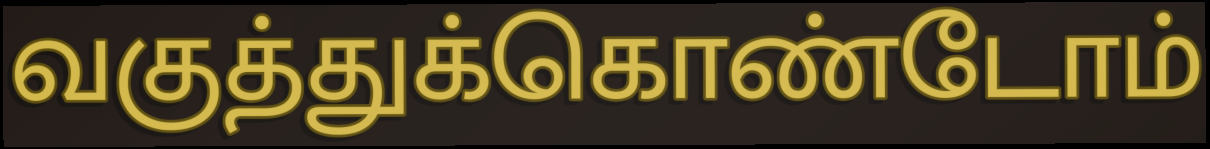
வகுத்துக்கொண்டோம்